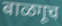
बाळगूच